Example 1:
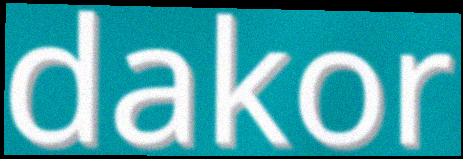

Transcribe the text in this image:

dakor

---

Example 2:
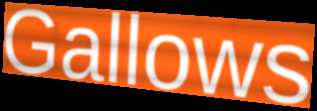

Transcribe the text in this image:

Gallows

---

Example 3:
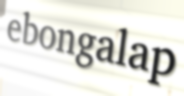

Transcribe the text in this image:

ebongalap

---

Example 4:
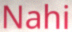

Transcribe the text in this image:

Nahi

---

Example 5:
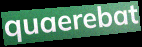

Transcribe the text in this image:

quaerebat